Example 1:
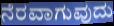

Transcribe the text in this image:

ನೆರವಾಗುವುದು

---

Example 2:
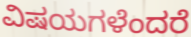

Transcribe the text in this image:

ವಿಷಯಗಳೆಂದರೆ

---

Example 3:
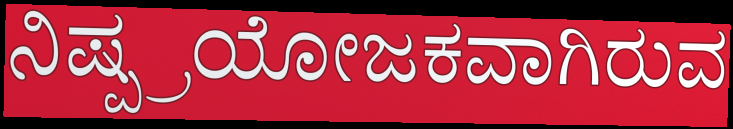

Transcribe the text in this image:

ನಿಷ್ಪ್ರಯೋಜಕವಾಗಿರುವ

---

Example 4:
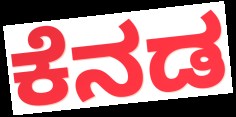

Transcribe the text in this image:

ಕೆನಡ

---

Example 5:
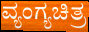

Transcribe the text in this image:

ವ್ಯಂಗ್ಯಚಿತ್ರ